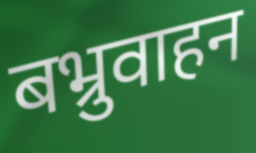
बभ्रुवाहन